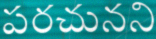
పరచునని